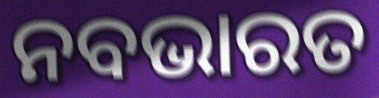
ନବଭାରତ